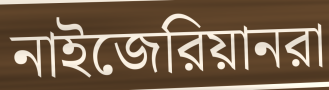
নাইজেরিয়ানরা